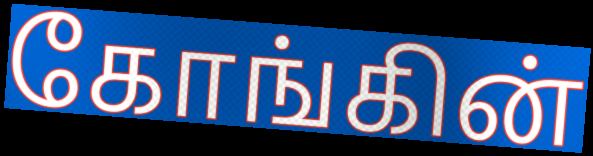
கோங்கின்